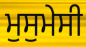
ਮੁਸੁਮੇਸੀ